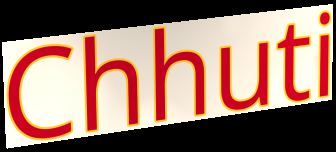
Chhuti